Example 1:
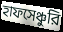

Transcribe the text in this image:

হাফসেঞ্চুরি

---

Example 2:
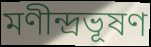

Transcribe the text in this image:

মণীন্দ্রভূষণ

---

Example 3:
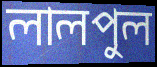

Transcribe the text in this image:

লালপুল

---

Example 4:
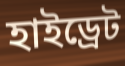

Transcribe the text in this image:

হাইড্রেট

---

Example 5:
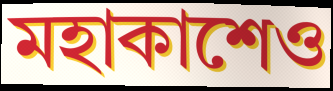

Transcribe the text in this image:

মহাকাশেও